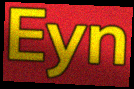
Eyn